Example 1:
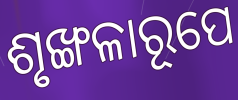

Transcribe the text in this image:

ଶୃଙ୍ଖଳାରୂପେ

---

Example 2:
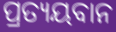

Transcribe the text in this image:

ପ୍ରତ୍ୟୟବାନ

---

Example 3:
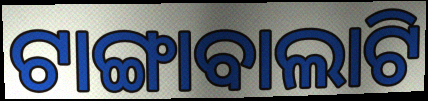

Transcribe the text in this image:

ଟାଙ୍ଗାବାଲାଟି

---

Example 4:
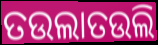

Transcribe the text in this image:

ତଉଲାତଉଲି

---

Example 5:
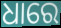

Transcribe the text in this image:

ଧାରେ